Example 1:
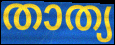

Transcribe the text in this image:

താത്യ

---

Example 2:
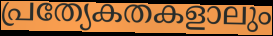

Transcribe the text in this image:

പ്രത്യേകതകളാലും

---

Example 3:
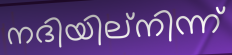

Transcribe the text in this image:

നദിയില്നിന്ന്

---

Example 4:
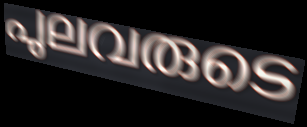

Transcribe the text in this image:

പുലവരുടെ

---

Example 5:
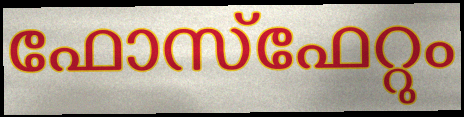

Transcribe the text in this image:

ഫോസ്ഫേറ്റും